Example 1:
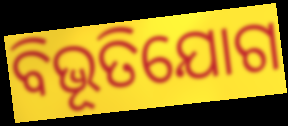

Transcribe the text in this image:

ବିଭୂତିଯୋଗ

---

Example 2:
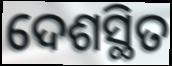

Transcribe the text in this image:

ଦେଶସ୍ଥିତ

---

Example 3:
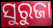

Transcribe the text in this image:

ସୁରୁଜା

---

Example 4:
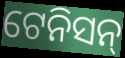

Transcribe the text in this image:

ଟେନିସନ୍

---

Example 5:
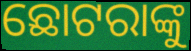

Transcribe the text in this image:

ଛୋଟରାଙ୍କୁ